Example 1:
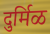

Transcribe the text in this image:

दुर्मिळ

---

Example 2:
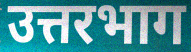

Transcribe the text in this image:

उत्तरभाग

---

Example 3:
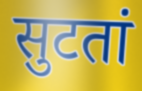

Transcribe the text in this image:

सुटतां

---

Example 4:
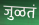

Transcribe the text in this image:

जुळतं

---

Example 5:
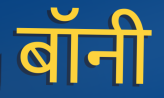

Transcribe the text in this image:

बॉनी